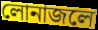
লোনাজলে